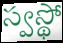
స్వస్థో